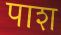
पाश